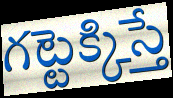
గట్టెక్కిస్తే